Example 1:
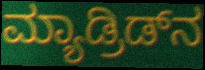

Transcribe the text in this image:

ಮ್ಯಾಡ್ರಿಡ್‌ನ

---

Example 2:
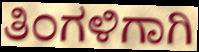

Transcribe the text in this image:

ತಿಂಗಳಿಗಾಗಿ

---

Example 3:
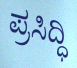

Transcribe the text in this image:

ಪ್ರಸಿದ್ಧಿ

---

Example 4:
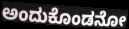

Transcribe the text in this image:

ಅಂದುಕೊಂಡನೋ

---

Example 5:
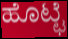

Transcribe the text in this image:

ಹೊಟ್ಟೆ